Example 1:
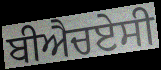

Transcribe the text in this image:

ਬੀਐਚਏਸੀ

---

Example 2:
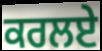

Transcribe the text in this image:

ਕਰਲਏ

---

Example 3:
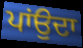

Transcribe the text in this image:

ਪਾਂਉਦਾ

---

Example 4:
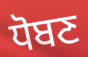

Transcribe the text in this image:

ਧੋਬਣ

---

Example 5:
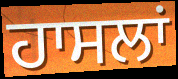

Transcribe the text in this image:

ਹਾਸਲਾਂ